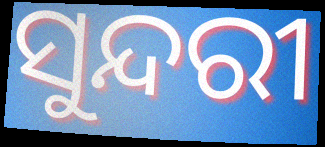
ସୁନ୍ଦରୀ